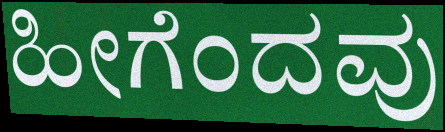
ಹೀಗೆಂದವು